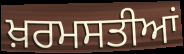
ਖ਼ਰਮਸਤੀਆਂ